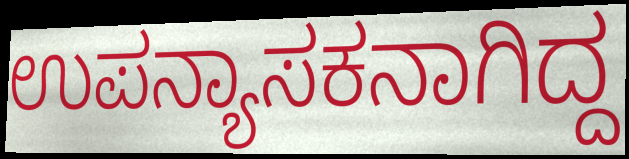
ಉಪನ್ಯಾಸಕನಾಗಿದ್ದ